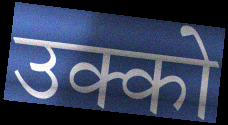
उक्को